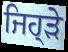
ਜਿਹ੍ੜੇ